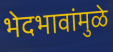
भेदभावांमुळे